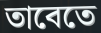
তাবেতে